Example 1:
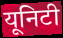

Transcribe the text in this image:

यूनिटी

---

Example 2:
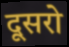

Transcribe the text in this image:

दूसरो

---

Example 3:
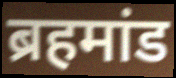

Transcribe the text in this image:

ब्रहमांड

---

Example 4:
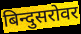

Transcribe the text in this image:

बिन्दुसरोवर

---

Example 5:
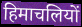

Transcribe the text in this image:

हिमाचलियों